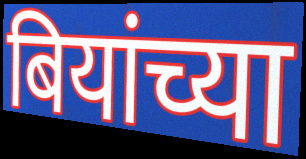
बियांच्या